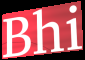
Bhi